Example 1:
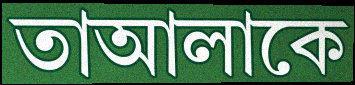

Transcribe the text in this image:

তাআলাকে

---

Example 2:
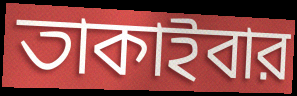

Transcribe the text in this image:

তাকাইবার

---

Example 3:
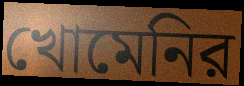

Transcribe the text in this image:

খোমেনির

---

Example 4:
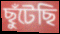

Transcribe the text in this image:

ছুঁটেছি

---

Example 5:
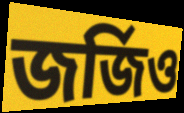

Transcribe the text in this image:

জর্জিও